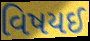
વિષયઈ